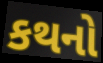
કથનો